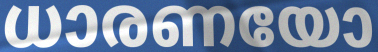
ധാരണയോ